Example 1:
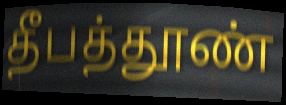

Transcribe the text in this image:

தீபத்தூண்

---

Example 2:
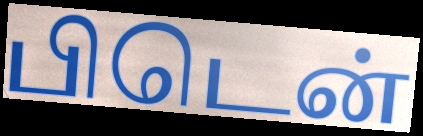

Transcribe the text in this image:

பிடென்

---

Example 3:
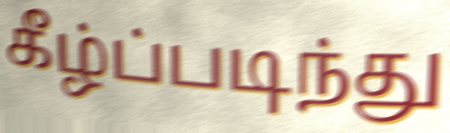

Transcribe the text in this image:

கீழ்ப்படிந்து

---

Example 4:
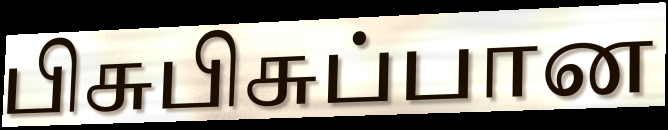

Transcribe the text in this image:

பிசுபிசுப்பான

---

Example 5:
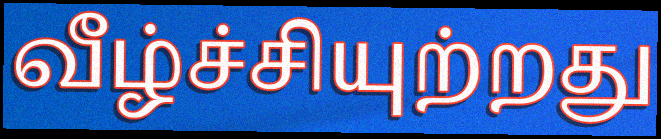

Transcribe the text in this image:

வீழ்ச்சியுற்றது